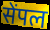
सेंपल